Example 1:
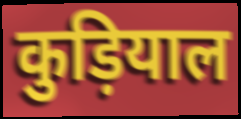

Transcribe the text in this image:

कुड़ियाल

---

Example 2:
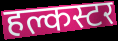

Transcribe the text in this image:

हल्कस्टर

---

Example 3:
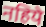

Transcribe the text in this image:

नहिये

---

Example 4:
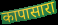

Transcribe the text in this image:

कापासारा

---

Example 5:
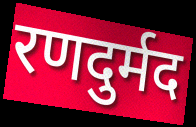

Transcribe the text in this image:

रणदुर्मद